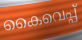
കൈവെപ്പ്